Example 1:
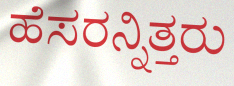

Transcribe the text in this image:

ಹೆಸರನ್ನಿತ್ತರು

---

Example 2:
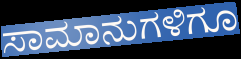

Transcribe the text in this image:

ಸಾಮಾನುಗಳಿಗೂ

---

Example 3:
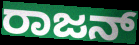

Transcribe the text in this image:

ರಾಜನ್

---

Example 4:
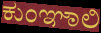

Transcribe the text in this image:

ಕುಂಞಾಲಿ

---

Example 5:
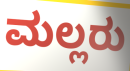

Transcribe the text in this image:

ಮಲ್ಲರು